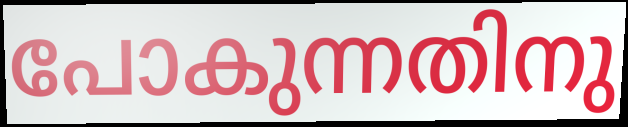
പോകുന്നതിനു